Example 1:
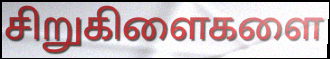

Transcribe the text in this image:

சிறுகிளைகளை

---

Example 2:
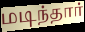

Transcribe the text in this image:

மடிந்தார்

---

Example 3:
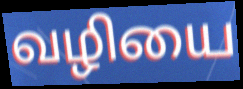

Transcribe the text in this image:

வழியை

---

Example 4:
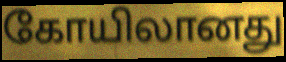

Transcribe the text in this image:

கோயிலானது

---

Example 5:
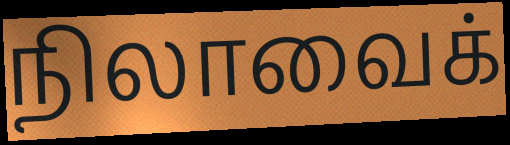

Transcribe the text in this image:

நிலாவைக்